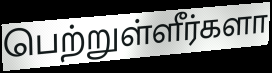
பெற்றுள்ளீர்களா